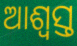
ଆଶ୍ୱସ୍ତ